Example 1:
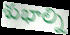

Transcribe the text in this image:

శుభాల్ని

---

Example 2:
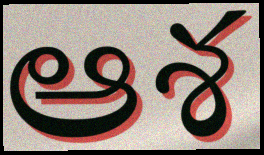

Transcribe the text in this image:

ఆశ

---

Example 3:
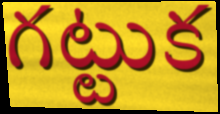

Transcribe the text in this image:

గట్టుక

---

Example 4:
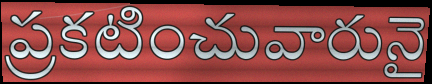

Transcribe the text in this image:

ప్రకటించువారునై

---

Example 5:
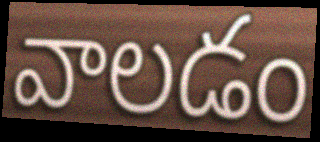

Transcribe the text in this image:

వాలడం